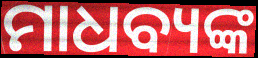
ମାଧବ୍ୟଙ୍କ